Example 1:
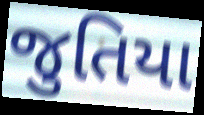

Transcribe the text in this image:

જુતિયા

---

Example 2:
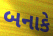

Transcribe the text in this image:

બનાકે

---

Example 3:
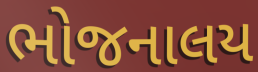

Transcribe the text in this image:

ભોજનાલય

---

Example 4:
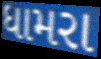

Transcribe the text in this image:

ધામરા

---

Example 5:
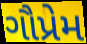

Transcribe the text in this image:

ગૌપ્રેમ